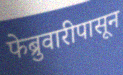
फेब्रुवारीपासून